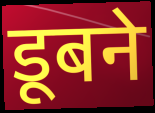
डूबने